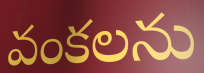
వంకలను